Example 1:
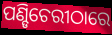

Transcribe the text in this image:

ପଣ୍ଡିଚେରୀଠାରେ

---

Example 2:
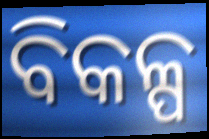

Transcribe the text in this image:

ବିକଳ୍ପ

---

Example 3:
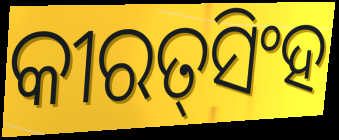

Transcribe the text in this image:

କୀରତ୍‍ସିଂହ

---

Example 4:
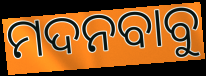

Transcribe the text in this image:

ମଦନବାବୁ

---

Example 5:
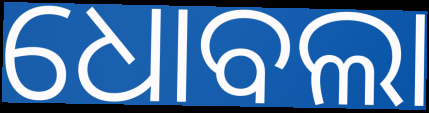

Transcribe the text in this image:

ଧୋବଲା